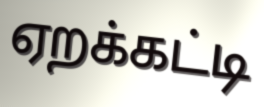
ஏறக்கட்டி